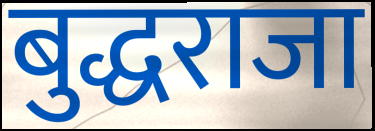
बुद्धराजा